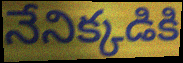
నేనిక్కడికి